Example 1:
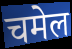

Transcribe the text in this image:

चमेल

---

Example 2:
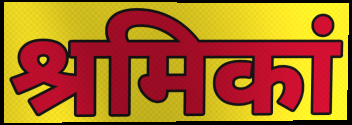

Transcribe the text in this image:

श्रमिकां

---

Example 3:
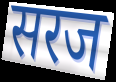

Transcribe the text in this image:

सरज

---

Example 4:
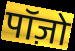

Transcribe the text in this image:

पॉज़ो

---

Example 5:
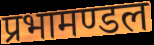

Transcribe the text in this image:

प्रभामण्डल